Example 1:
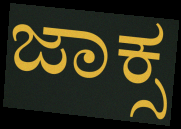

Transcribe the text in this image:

ಜಾಕ್ಸ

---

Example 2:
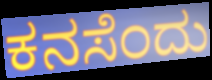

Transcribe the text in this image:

ಕನಸೆಂದು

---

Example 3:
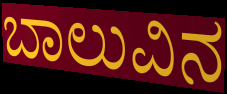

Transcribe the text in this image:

ಬಾಲುವಿನ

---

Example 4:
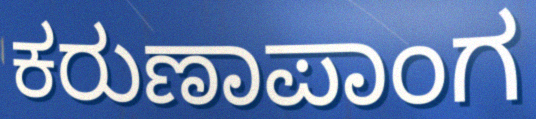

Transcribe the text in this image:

ಕರುಣಾಪಾಂಗ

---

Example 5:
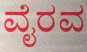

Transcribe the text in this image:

ವೈರವ